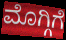
ಮೊಗ್ಗಿಗೆ